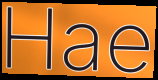
Hae